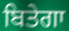
ਬਿਤੇਗਾ